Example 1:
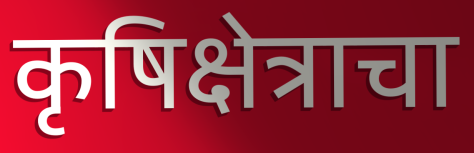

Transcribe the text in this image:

कृषिक्षेत्राचा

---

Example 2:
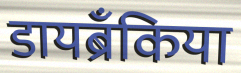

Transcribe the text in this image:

डायब्रँकिया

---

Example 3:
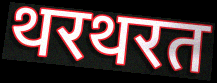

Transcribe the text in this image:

थरथरत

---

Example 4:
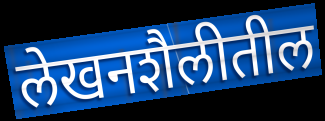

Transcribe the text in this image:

लेखनशैलीतील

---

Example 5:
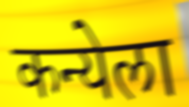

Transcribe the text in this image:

कन्येला